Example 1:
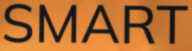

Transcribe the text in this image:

SMART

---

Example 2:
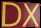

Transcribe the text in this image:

DX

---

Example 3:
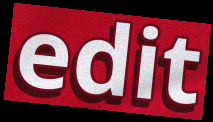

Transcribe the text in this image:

edit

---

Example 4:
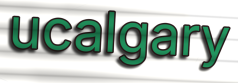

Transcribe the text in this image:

ucalgary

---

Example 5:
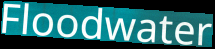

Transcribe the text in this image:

Floodwater